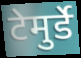
टेमुर्डे